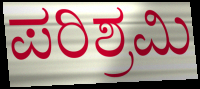
ಪರಿಶ್ರಮಿ